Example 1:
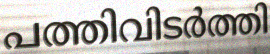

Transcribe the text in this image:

പത്തിവിടർത്തി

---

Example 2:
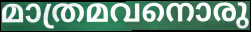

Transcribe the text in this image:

മാത്രമവനൊരു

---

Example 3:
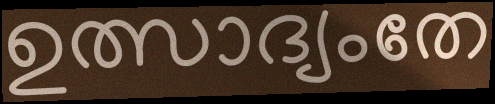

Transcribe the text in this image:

ഉത്സാദ്യംതേ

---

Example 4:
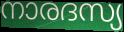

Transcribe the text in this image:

നാരദസ്യ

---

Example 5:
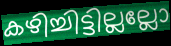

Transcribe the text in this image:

കഴിച്ചിട്ടില്ലല്ലോ